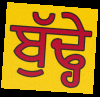
ਬੁੱਢ੍ਹੇ